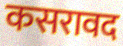
कसरावद